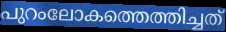
പുറംലോകത്തെത്തിച്ചത്